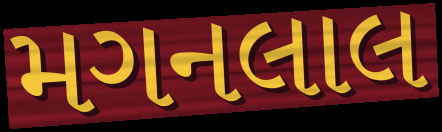
મગનલાલ